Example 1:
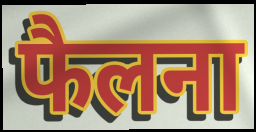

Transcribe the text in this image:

फैलना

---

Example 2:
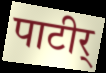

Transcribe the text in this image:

पाटीर्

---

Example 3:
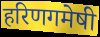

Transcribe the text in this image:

हरिणगमेषी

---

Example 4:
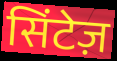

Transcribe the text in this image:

सिंटेज़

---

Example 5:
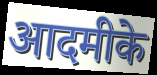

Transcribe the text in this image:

आदमीके